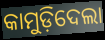
କାମୁଡ଼ିଦେଲା